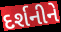
દર્શનીને